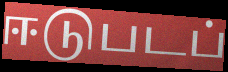
ஈடுபடப்